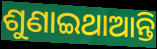
ଶୁଣାଇଥାଆନ୍ତି